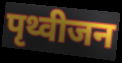
पृथ्वीजन